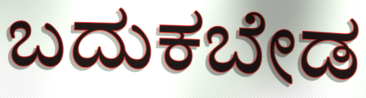
ಬದುಕಬೇಡ